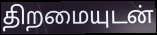
திறமையுடன்